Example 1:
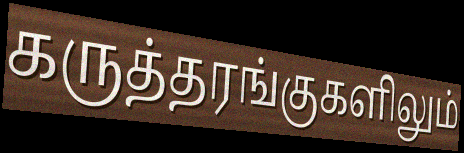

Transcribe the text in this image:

கருத்தரங்குகளிலும்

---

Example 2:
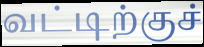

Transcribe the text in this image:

வட்டிற்குச்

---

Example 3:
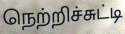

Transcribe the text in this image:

நெற்றிச்சுட்டி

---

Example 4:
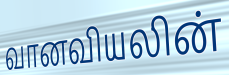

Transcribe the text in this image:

வானவியலின்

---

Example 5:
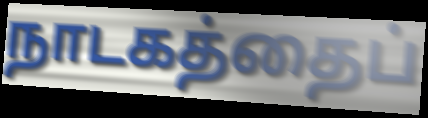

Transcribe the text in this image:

நாடகத்தைப்